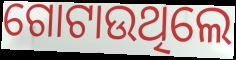
ଗୋଟାଉଥିଲେ